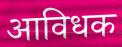
आविधक